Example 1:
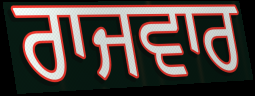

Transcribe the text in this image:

ਰਾਜਵਾਰ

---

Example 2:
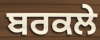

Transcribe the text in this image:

ਬਰਕਲੇ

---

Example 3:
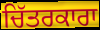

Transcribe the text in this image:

ਚਿੱਤਰਕਾਰਾ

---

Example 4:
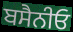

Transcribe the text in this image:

ਬਸੈਨੀਓ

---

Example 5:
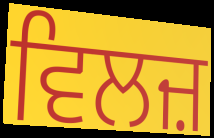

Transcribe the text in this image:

ਵਿਲਜ਼